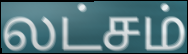
லட்சம்